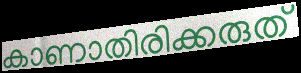
കാണാതിരിക്കരുത്